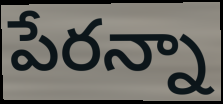
పేరన్నా